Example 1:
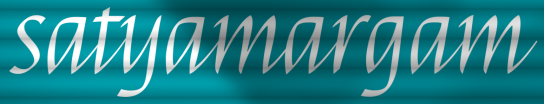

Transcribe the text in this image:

satyamargam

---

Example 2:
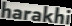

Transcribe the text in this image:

harakhi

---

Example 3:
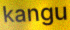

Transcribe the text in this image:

kangu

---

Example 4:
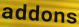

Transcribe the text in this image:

addons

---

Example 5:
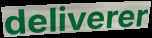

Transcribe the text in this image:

deliverer